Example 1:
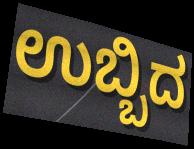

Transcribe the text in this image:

ಉಬ್ಬಿದ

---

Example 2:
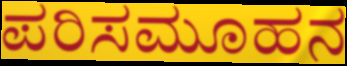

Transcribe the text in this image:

ಪರಿಸಮೂಹನ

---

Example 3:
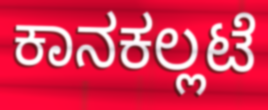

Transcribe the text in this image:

ಕಾನಕಲ್ಲಟೆ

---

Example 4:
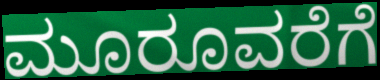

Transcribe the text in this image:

ಮೂರೂವರೆಗೆ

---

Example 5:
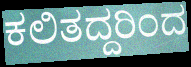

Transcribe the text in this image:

ಕಲಿತದ್ದರಿಂದ